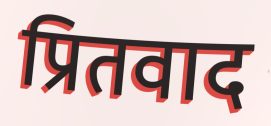
प्रितवाद